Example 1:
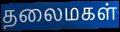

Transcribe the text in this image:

தலைமகள்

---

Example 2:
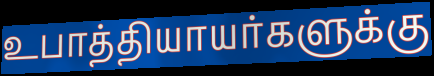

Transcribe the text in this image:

உபாத்தியாயர்களுக்கு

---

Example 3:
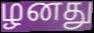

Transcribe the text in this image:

ழனது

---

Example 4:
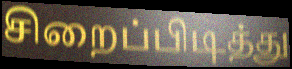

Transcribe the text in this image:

சிறைப்பிடித்து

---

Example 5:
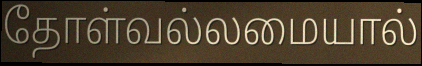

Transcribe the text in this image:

தோள்வல்லமையால்